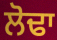
ਲੋਢਾ